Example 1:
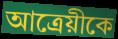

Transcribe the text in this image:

আত্রেয়ীকে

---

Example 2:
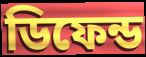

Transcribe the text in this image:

ডিফেন্ড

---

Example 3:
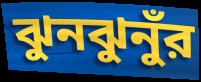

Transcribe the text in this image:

ঝুনঝুনুঁর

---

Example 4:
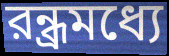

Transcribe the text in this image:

রন্ধ্রমধ্যে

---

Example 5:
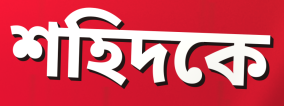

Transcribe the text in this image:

শহিদকে